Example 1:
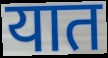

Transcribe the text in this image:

यात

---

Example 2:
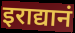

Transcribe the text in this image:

इराद्यानं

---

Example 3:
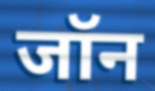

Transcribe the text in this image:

जॉन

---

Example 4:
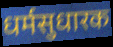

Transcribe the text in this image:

धर्मसुधारक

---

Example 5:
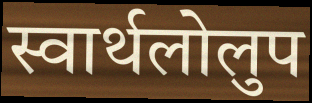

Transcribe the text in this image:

स्वार्थलोलुप